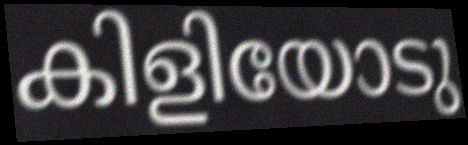
കിളിയോടു